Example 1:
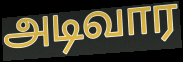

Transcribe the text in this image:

அடிவார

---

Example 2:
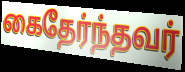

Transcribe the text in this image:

கைதேர்ந்தவர்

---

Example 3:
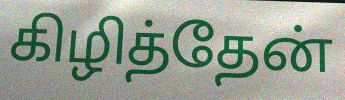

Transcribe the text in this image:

கிழித்தேன்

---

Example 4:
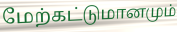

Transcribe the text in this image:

மேற்கட்டுமானமும்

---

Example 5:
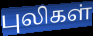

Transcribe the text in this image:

புலிகள்